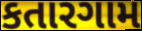
કતારગામ